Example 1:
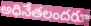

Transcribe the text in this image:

అధినేతలందరూ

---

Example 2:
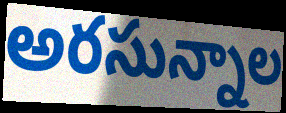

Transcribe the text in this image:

అరసున్నాల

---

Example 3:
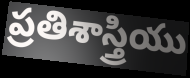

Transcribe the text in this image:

ప్రతిశాస్త్రియు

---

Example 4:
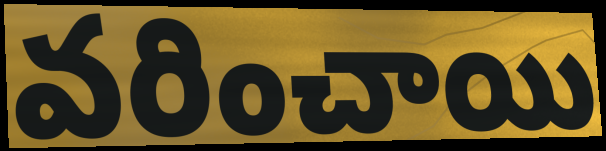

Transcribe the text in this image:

వరించాయి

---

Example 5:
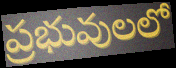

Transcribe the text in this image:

ప్రభువులలో